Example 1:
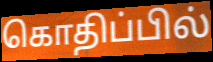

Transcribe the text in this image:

கொதிப்பில்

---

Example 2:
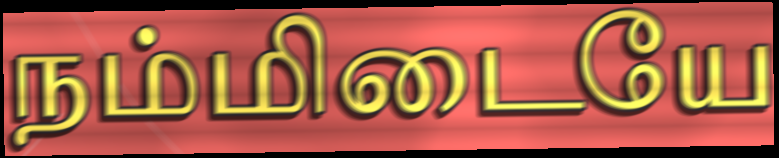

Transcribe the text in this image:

நம்மிடையே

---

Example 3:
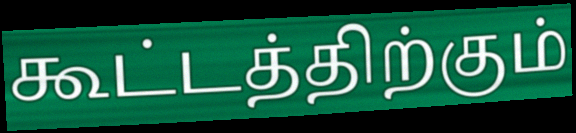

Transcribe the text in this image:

கூட்டத்திற்கும்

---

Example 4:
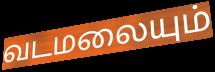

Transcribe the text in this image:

வடமலையும்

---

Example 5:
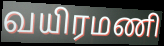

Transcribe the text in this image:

வயிரமணி